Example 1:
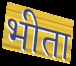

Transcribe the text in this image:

भीता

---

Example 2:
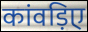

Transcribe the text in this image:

कांवड़िए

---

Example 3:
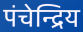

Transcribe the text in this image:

पंचेन्द्रिय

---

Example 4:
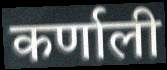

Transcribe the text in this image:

कर्णाली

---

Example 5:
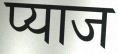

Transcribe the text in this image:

प्याज